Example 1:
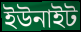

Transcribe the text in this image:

ইউনাইট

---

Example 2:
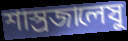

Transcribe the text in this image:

শাস্ত্রজালেষু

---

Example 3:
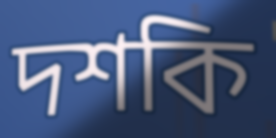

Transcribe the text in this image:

দশকি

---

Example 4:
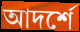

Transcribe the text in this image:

আদর্শে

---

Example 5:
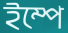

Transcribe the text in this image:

ইম্পে